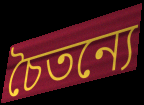
চৈতন্যে